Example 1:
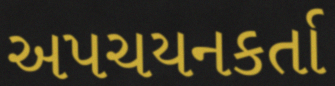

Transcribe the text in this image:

અપચયનકર્તા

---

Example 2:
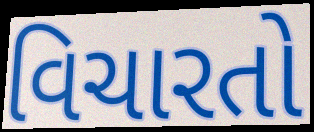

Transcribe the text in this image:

વિચારતો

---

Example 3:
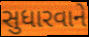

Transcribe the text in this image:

સુધારવાને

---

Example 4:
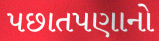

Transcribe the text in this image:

પછાતપણાનો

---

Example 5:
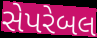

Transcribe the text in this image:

સેપરેબલ